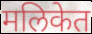
मलिकेत